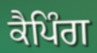
ਕੈਪਿੰਗ